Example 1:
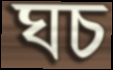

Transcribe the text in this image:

ঘচ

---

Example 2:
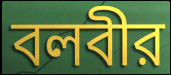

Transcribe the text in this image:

বলবীর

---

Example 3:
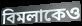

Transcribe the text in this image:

বিমলাকেও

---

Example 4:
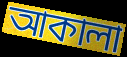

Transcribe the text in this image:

আকালা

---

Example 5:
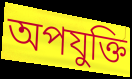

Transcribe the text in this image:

অপযুক্তি